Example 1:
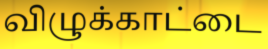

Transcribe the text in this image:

விழுக்காட்டை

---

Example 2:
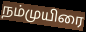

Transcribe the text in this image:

நம்முயிரை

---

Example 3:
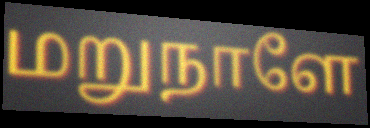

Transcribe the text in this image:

மறுநாளே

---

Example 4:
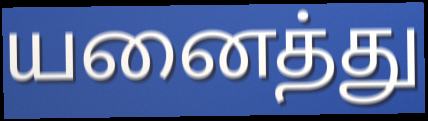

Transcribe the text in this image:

யனைத்து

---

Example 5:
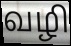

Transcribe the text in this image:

வழி